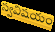
స్వవిషయం